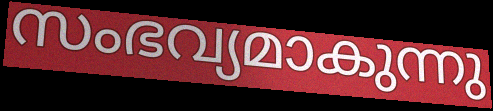
സംഭവ്യമാകുന്നു